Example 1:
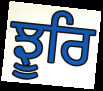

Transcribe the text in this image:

ਝੂਰਿ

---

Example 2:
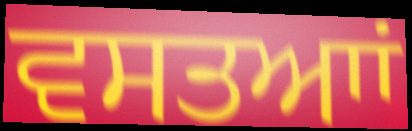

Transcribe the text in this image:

ਵਸਤਆਾਂ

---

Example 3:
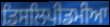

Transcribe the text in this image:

ਡਿਸਲਿਪੀਡਮੀਆ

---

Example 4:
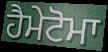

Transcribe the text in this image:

ਹੈਮੇਟੋਮਾ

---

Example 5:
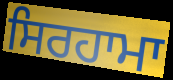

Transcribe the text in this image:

ਸਿਰਹਾਮਾ